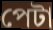
পেটা